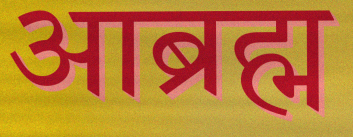
आब्रह्म